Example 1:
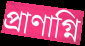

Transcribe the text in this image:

প্রাণাগ্নি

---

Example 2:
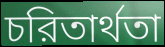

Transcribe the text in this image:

চরিতার্থতা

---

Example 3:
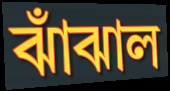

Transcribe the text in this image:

ঝাঁঝাল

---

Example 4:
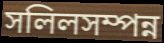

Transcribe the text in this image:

সলিলসম্পন্ন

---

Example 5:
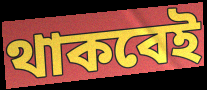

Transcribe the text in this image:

থাকবেই